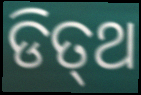
ଡିତ୍‍ଥ